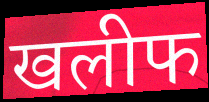
खलीफ